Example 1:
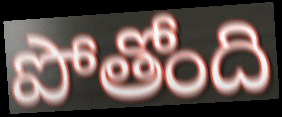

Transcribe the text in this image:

పోతోంది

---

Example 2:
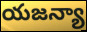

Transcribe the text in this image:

యజన్యా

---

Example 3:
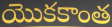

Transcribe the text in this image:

యొకకాంత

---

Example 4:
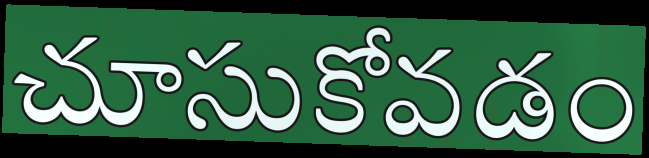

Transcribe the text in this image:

చూసుకోవడం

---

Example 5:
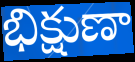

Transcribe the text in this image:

భిక్షుణా